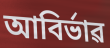
আবিৰ্ভাৱ